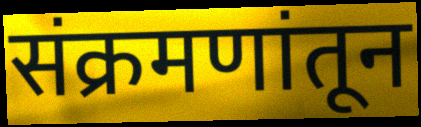
संक्रमणांतून